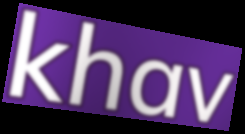
khav